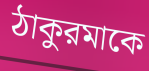
ঠাকুরমাকে